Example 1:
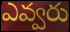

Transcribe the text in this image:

ఎవ్వరు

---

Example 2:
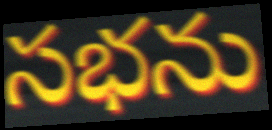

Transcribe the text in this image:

సభను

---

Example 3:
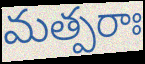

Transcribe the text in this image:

మత్పరాః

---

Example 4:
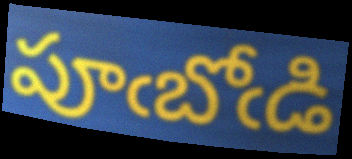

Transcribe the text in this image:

పూఁబోఁడి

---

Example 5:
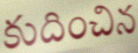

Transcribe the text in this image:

కుదించిన